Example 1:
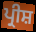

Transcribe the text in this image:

ਪ੍ਰੀਸ਼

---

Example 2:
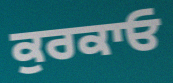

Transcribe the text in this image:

ਕੁਰਕਾਓ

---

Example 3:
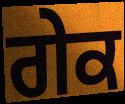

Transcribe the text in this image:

ਗੇਕ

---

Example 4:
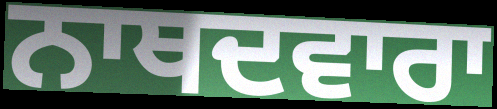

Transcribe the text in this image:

ਨਾਥਦਵਾਰਾ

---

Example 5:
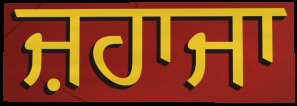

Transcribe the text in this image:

ਜ਼ਹਾਜਾ